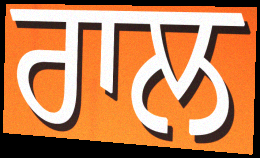
ਰਾਲ